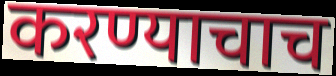
करण्याचाच